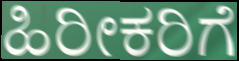
ಹಿರೀಕರಿಗೆ